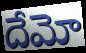
దేమో